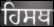
ਹਿਸਥ